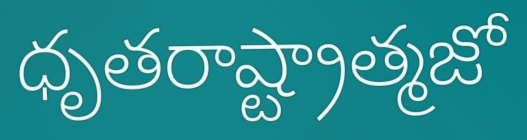
ధృతరాష్ట్రాత్మజో